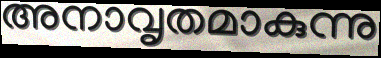
അനാവൃതമാകുന്നു